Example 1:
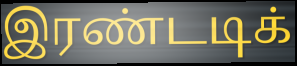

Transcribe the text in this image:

இரண்டடிக்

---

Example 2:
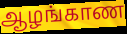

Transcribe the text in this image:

ஆழங்காண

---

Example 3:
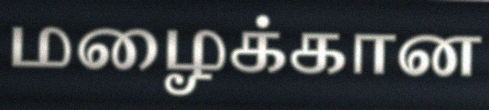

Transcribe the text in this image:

மழைக்கான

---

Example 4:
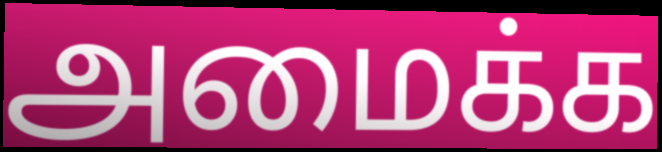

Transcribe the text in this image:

அமைக்க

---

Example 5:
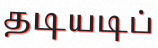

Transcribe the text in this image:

தடியடிப்